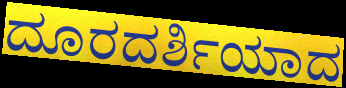
ದೂರದರ್ಶಿಯಾದ